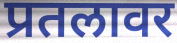
प्रतलावर